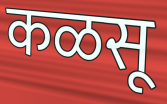
कळसू